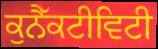
ਕੁਨੈੱਕਟੀਵਿਟੀ